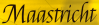
Maastricht